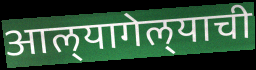
आल्यागेल्याची